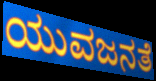
ಯುವಜನತೆ